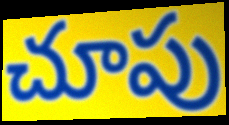
చూపు